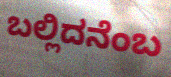
ಬಲ್ಲಿದನೆಂಬ